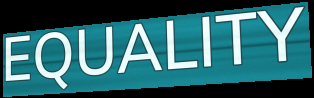
EQUALITY